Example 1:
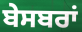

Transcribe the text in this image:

ਬੇਸਬਰਾਂ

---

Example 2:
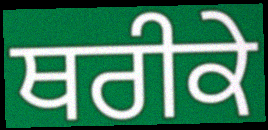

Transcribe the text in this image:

ਥਰੀਕੇ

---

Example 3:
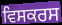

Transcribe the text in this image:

ਵਿਸਕਰਸ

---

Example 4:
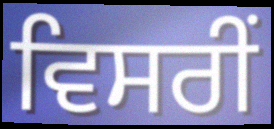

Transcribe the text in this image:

ਵਿਸਰੀਂ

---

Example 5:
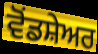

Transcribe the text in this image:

ਵੋਂਡਸ਼ੇਅਰ